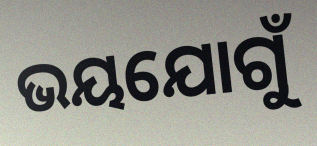
ଭୟଯୋଗୁଁ